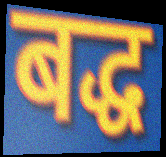
बद्ध